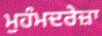
ਮੁਹੰਮਦਰੇਜ਼ਾ